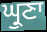
ਘ੍ਰੁਣਾ